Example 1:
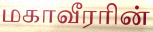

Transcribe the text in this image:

மகாவீரரின்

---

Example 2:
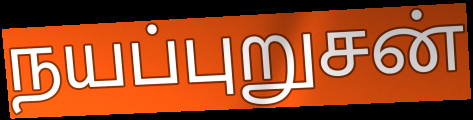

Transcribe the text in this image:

நயப்புறுசன்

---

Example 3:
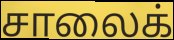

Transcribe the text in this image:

சாலைக்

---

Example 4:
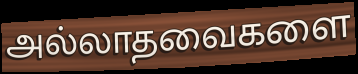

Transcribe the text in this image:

அல்லாதவைகளை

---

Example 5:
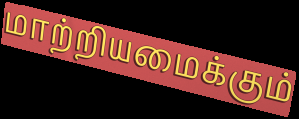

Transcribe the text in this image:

மாற்றியமைக்கும்